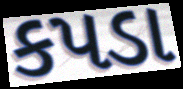
કપડા